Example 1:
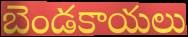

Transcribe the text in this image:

బెండకాయలు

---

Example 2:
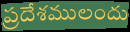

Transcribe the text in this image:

ప్రదేశములందు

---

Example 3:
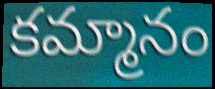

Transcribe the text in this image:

కమ్మానం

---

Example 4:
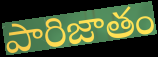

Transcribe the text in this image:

పారిజాతం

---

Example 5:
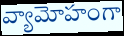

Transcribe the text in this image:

వ్యామోహంగా